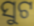
ସୁଟ